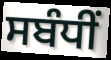
ਸਬੰਧੀਂ